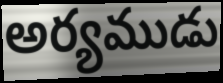
అర్యముడు